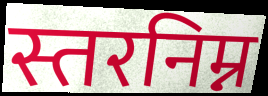
स्तरनिम्न